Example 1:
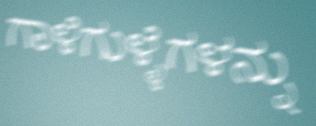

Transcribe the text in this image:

ಗಾಳಿಗುಳ್ಳೆಗಳನ್ನು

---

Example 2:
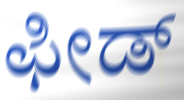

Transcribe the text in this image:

ಫೀಡ್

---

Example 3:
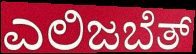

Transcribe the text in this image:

ಎಲಿಜಬೆತ್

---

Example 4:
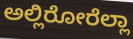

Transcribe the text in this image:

ಅಲ್ಲಿರೋರೆಲ್ಲಾ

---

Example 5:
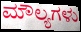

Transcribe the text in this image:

ಮೌಲ್ಯಗಳು